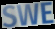
SWE